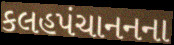
કલહપંચાનનના